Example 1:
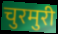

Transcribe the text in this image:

चुरमुरी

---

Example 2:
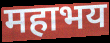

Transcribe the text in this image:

महाभय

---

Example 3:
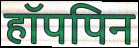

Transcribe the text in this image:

हॉपपिन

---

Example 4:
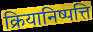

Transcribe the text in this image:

क्रियानिष्पत्ति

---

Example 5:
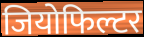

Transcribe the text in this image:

जियोफिल्टर